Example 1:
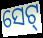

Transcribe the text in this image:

ସେଟ୍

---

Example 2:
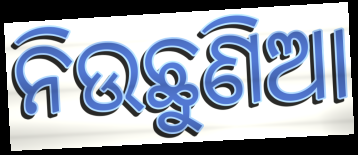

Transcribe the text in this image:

ନିଉଛୁଣିଆ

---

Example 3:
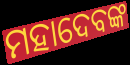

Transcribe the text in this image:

ମହାଦେବଙ୍କ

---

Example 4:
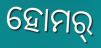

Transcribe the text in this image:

ହୋମର୍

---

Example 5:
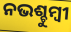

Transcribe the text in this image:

ନଭଶ୍ଚୁମ୍ବୀ